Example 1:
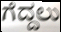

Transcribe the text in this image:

ಗೆದ್ದಲು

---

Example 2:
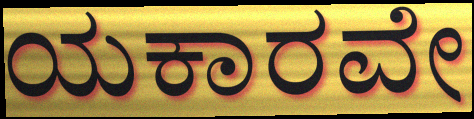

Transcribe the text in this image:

ಯಕಾರವೇ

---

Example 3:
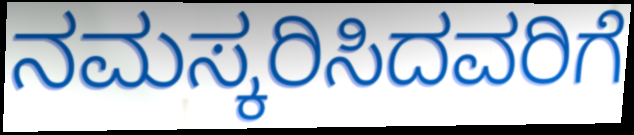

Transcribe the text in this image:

ನಮಸ್ಕರಿಸಿದವರಿಗೆ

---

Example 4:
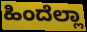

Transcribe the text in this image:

ಹಿಂದೆಲ್ಲಾ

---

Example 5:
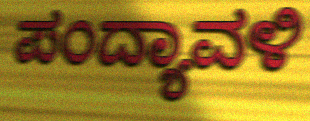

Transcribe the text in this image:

ಪಂದ್ಯಾವಳಿ